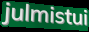
julmistui